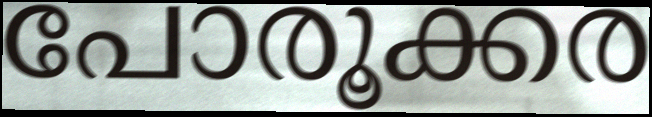
പോരൂക്കര